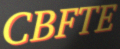
CBFTE